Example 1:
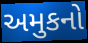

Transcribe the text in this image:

અમુકનો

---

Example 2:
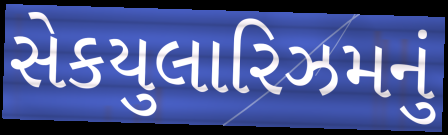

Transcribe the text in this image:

સેકયુલારિઝમનું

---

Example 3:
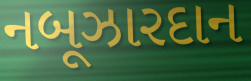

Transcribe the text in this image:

નબૂઝારદાન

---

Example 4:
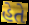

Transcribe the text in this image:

હેતે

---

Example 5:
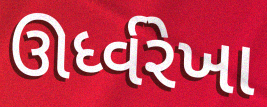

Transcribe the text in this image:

ઊર્ધ્વરેખા